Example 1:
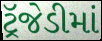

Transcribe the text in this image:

ટ્રૅજેડીમાં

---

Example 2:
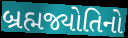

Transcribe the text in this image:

બ્રહ્મજ્યોતિનો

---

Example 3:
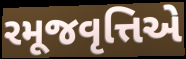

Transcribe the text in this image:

રમૂજવૃત્તિએ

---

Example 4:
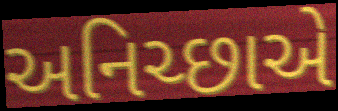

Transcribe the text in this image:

અનિચ્છાએ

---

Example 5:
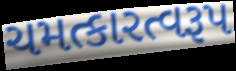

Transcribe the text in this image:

ચમત્કારત્વરૂપ